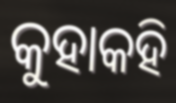
କୁହାକହି